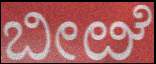
ಬೀೞೆ